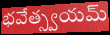
భవేత్స్వయమ్